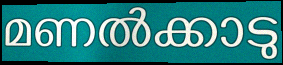
മണൽക്കാടു